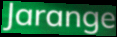
Jarange